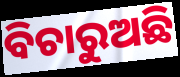
ବିଚାରୁଅଛି